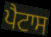
ਪੈਟਾਸ